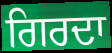
ਗਿਰਦਾ